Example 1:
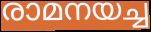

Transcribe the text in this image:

രാമനയച്ച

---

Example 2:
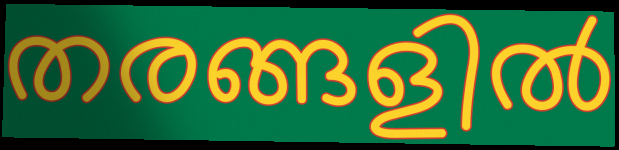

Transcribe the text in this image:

തരങ്ങളിൽ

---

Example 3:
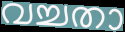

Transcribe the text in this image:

വച്ചതാ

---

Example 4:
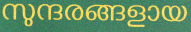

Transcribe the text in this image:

സുന്ദരങ്ങളായ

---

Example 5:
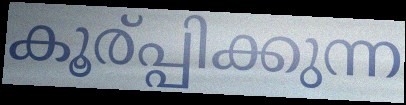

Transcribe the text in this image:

കൂര്പ്പിക്കുന്ന